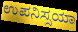
ಉಪನಿಸ್ಸಯಾ